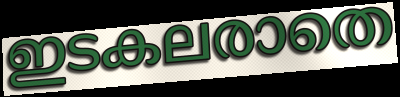
ഇടകലരാതെ